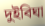
দুইবিঘা